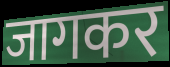
जागकर